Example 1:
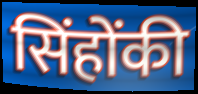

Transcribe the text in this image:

सिंहोंकी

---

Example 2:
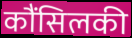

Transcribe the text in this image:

कौंसिलकी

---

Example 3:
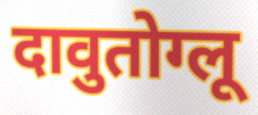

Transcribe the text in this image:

दावुतोग्लू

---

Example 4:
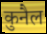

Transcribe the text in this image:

कुनैल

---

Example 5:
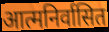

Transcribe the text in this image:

आत्मनिर्वासित